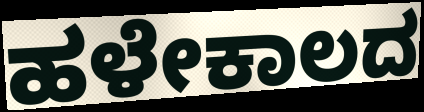
ಹಳೇಕಾಲದ